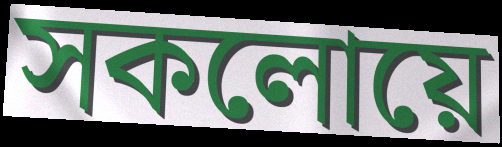
সকলোয়ে